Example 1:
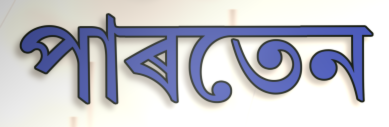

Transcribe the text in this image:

পাৰতেন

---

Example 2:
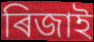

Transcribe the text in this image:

ৰিজাই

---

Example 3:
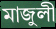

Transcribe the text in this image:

মাজুলী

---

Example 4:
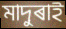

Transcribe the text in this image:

মাদুৰাই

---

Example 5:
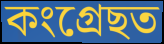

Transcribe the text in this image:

কংগ্ৰেছত